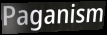
Paganism